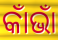
କାଁଭାଁ